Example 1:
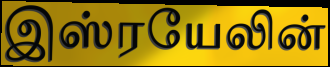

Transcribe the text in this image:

இஸ்ரயேலின்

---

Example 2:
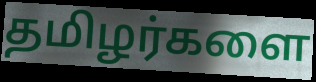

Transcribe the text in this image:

தமிழர்களை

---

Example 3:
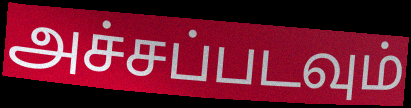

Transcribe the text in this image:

அச்சப்படவும்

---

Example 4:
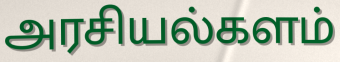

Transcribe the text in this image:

அரசியல்களம்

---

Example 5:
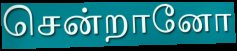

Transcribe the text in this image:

சென்றானோ